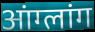
आंग्लांग